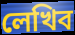
লেখিব